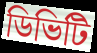
ডিভিটি